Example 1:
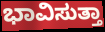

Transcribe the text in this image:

ಭಾವಿಸುತ್ತಾ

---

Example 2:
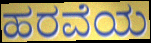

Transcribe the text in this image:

ಹರವೆಯ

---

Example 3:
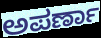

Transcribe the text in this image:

ಅಪರ್ಣಾ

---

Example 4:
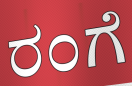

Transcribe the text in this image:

ರಂಗೆ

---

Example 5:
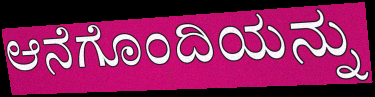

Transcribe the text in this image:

ಆನೆಗೊಂದಿಯನ್ನು